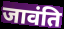
जावंति